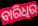
ବାରିଧିର